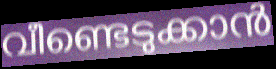
വീണ്ടെടുക്കാൻ